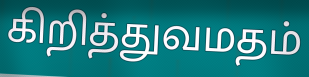
கிறித்துவமதம்